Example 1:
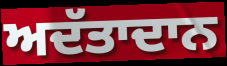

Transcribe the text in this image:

ਅਦੱਤਾਦਾਨ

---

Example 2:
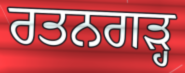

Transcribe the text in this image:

ਰਤਨਗੜ੍ਹ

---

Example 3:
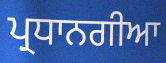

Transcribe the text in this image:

ਪ੍ਰਧਾਨਗੀਆ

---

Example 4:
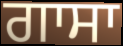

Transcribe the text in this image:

ਗਾਸਾ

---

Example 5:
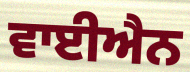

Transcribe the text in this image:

ਵਾਈਐਨ